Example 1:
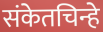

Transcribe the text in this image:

संकेतचिन्हे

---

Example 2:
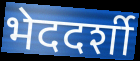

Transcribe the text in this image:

भेददर्शी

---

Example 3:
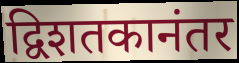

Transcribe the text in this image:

द्विशतकानंतर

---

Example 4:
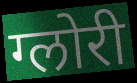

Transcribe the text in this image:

ग्लोरी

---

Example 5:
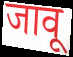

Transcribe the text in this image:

जावू